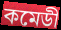
কমেডী